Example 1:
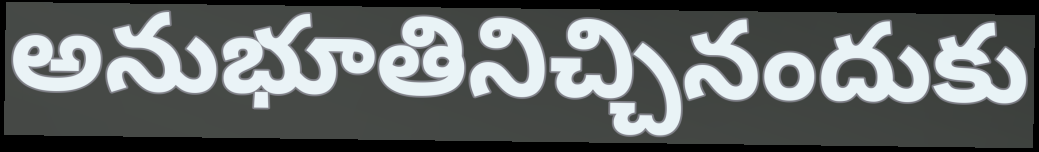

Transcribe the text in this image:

అనుభూతినిచ్చినందుకు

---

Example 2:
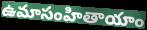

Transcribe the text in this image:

ఉమాసంహితాయాం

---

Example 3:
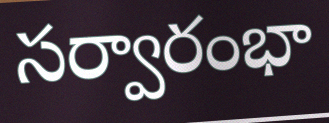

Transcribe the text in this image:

సర్వారంభా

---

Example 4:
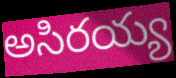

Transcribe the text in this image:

అసిరయ్య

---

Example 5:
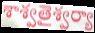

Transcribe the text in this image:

శాశ్వతైశ్వర్యా